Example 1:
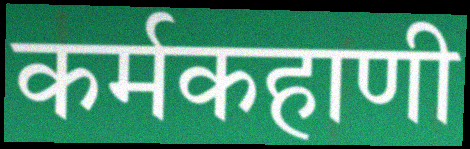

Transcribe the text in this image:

कर्मकहाणी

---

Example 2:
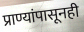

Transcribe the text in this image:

प्राण्यांपासूनही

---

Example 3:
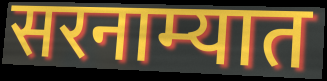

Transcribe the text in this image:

सरनाम्यात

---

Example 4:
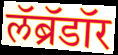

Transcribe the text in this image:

लॅब्रॅडॉर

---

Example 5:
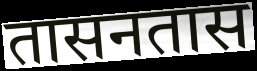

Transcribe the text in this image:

तासनतास